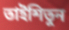
তাইশিতুন